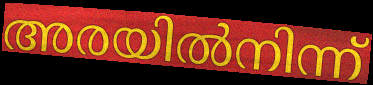
അരയിൽനിന്ന്